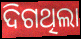
ଦିଗଥିଲା